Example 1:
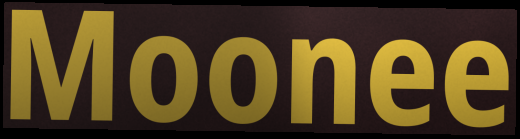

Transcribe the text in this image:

Moonee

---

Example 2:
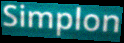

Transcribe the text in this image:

Simplon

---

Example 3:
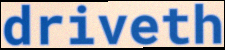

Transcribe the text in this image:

driveth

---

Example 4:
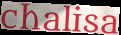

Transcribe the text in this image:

chalisa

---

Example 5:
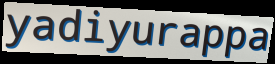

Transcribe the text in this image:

yadiyurappa